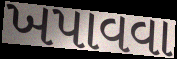
ખપાવવા